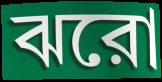
ঝরো